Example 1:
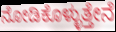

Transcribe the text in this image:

ನೋಡಿಕೊಳ್ಳುತ್ತೇನೆ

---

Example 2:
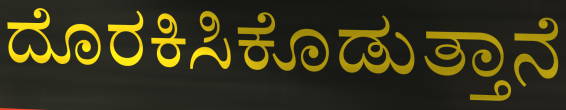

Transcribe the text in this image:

ದೊರಕಿಸಿಕೊಡುತ್ತಾನೆ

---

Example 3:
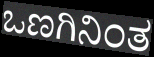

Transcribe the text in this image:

ಒಣಗಿನಿಂತ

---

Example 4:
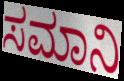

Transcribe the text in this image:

ಸಮಾನಿ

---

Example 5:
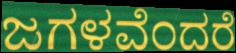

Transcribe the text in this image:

ಜಗಳವೆಂದರೆ